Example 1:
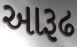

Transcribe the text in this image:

આરૂઢ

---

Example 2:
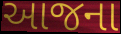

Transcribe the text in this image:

આજના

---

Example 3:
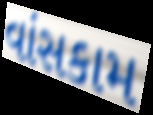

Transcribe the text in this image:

વાંસકામ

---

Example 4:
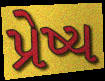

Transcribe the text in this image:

પ્રેષ્ય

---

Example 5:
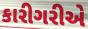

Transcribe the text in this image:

કારીગરીએ